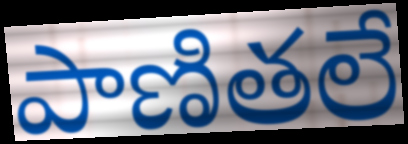
పాణితలే